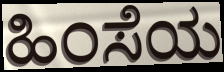
ಹಿಂಸೆಯ